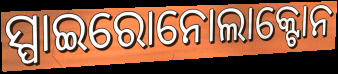
ସ୍ପାଇରୋନୋଲାକ୍ଟୋନ